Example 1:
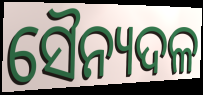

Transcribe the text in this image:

ସୈନ୍ୟଦଳ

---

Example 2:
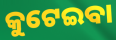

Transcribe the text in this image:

କୁଟେଇବା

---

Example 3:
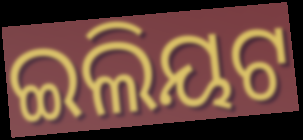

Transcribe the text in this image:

ଇଲିୟଟ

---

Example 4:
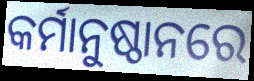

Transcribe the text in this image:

କର୍ମାନୁଷ୍ଠାନରେ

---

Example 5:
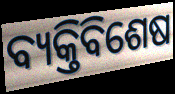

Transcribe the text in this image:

ବ୍ୟକ୍ତିବିଶେଷ